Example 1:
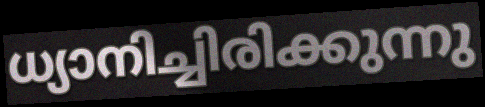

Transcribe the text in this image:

ധ്യാനിച്ചിരിക്കുന്നു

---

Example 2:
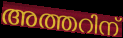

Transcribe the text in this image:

അത്തറിന്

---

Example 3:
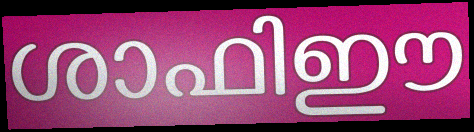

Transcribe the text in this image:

ശാഫിഈ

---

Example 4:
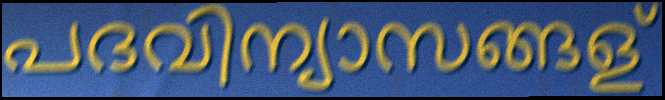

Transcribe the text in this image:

പദവിന്യാസങ്ങള്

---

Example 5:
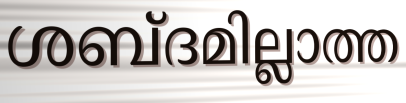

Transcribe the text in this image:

ശബ്ദമില്ലാത്ത